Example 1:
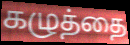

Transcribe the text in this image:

கழுத்தை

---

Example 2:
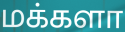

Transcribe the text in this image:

மக்களா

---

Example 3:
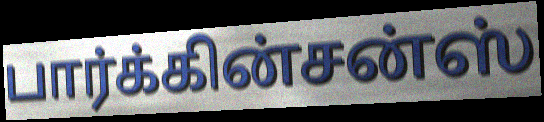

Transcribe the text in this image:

பார்க்கின்சன்ஸ்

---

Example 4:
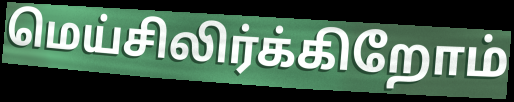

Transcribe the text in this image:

மெய்சிலிர்க்கிறோம்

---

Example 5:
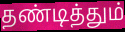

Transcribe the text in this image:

தண்டித்தும்